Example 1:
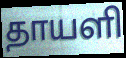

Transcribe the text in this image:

தாயளி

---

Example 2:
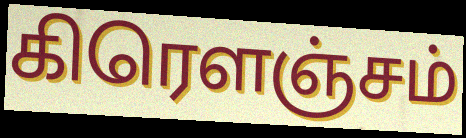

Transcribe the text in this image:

கிரௌஞ்சம்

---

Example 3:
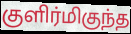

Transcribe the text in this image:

குளிர்மிகுந்த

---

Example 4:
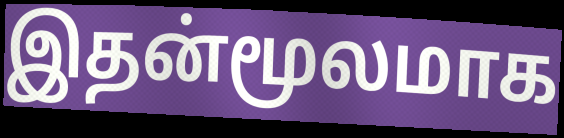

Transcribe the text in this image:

இதன்மூலமாக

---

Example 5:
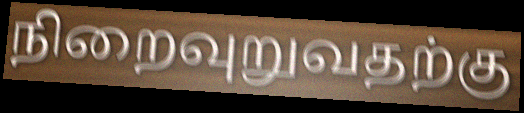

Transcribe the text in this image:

நிறைவுறுவதற்கு